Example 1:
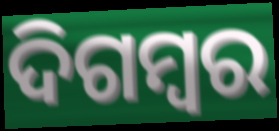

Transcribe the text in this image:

ଦିଗମ୍ବର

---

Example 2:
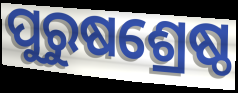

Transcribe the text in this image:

ପୁରୁଷଶ୍ରେଷ୍ଠ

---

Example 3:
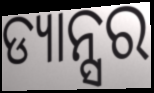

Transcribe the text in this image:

ଡ୍ୟାନ୍ସର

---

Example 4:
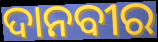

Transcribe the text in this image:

ଦାନବୀର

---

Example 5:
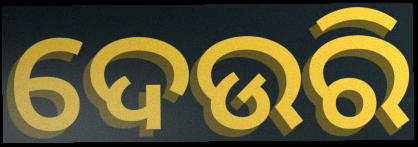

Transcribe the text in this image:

ଦେଉରି